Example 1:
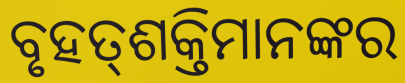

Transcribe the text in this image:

ବୃହତ୍‍ଶକ୍ତିମାନଙ୍କର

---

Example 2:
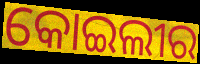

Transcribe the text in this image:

କୋଇଲୀର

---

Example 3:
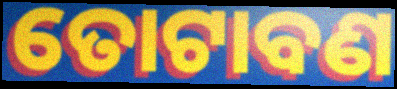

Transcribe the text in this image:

ତୋଟାବଣ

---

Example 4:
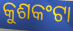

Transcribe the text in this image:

କୁଶକଂଟା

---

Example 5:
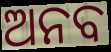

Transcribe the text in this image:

ଅନବ